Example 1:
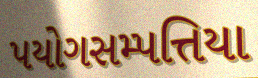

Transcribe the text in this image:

પયોગસમ્પત્તિયા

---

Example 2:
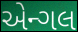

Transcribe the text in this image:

એન્ગલ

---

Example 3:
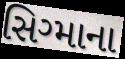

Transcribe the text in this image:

સિગ્માના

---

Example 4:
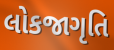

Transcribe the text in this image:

લોકજાગૃતિ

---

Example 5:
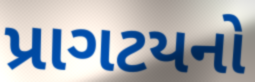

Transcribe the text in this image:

પ્રાગટયનો